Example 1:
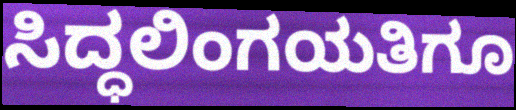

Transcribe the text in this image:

ಸಿದ್ಧಲಿಂಗಯತಿಗೂ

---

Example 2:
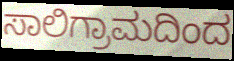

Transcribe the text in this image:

ಸಾಲಿಗ್ರಾಮದಿಂದ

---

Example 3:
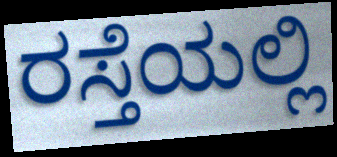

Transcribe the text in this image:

ರಸ್ತೆಯಲ್ಲಿ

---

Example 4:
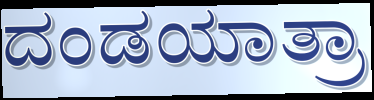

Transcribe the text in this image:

ದಂಡಯಾತ್ರಾ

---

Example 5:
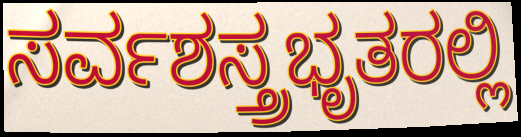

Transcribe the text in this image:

ಸರ್ವಶಸ್ತ್ರಭೃತರಲ್ಲಿ